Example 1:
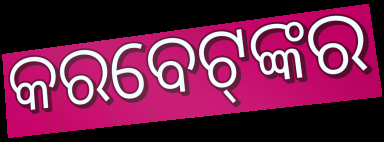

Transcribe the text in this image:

କରବେଟ୍‌ଙ୍କର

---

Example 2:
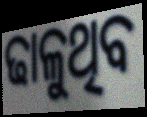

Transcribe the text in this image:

ଢାଳୁଥିବ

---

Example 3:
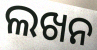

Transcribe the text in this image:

ଲଖନ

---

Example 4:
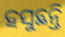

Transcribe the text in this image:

ହସୁଛନ୍ତି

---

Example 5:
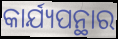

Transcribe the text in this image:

କାର୍ଯ୍ୟପନ୍ଥାର